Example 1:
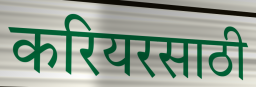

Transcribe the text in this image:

करियरसाठी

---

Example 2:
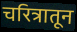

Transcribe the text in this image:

चरित्रातून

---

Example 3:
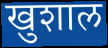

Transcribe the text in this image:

खुशाल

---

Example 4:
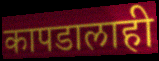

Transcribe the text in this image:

कापडालाही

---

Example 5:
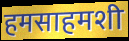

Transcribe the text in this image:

हमसाहमशी